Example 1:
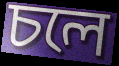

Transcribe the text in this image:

চলে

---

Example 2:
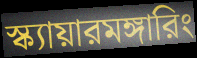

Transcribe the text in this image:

স্ক্যায়ারমঙ্গারিং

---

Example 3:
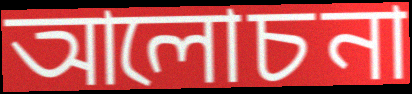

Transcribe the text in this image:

আলোচনা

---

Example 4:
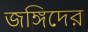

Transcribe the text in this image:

জঙ্গিদের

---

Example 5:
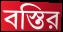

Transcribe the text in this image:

বস্তির